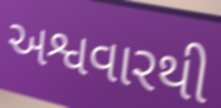
અશ્વવારથી